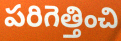
పరిగెత్తించి